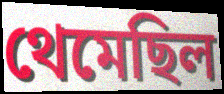
থেমেছিল